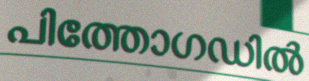
പിത്തോഗഡിൽ